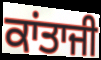
ਕਾਂਤਾਜੀ